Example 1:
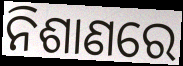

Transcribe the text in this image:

ନିଶାଣରେ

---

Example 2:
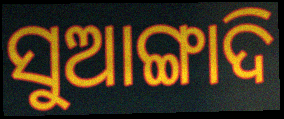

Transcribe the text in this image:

ସୁଆଙ୍ଗାଦି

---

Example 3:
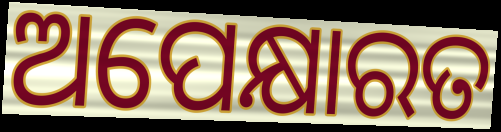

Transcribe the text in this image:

ଅପେକ୍ଷାରତ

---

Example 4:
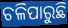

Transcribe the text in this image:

ଚଳିପାରୁଛି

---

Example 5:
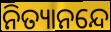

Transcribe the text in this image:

ନିତ୍ୟାନନ୍ଦେ